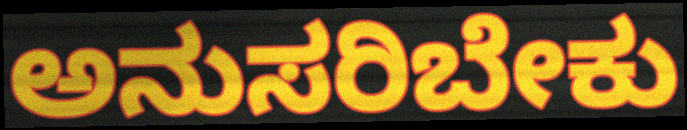
ಅನುಸರಿಬೇಕು